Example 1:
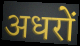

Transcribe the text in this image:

अधरों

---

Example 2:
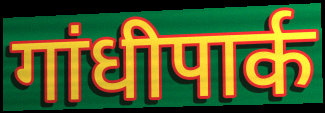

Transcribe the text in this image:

गांधीपार्क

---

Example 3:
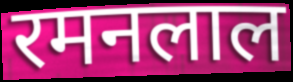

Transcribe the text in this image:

रमनलाल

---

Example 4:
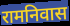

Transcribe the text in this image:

रामनिवास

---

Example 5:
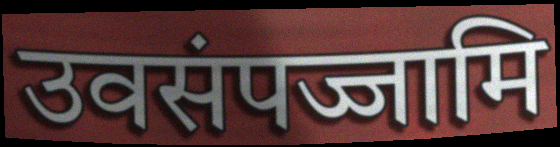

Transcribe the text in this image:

उवसंपज्जामि